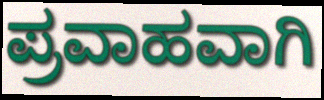
ಪ್ರವಾಹವಾಗಿ